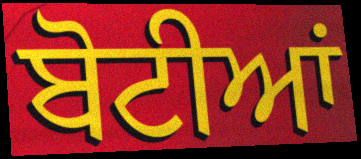
ਬੋਟੀਆਂ